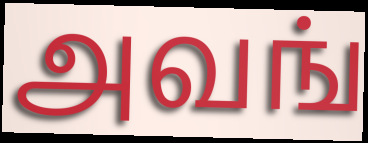
அவங்